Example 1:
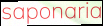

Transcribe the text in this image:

saponaria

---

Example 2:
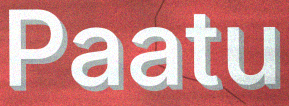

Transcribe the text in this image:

Paatu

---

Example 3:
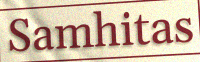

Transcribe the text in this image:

Samhitas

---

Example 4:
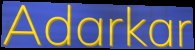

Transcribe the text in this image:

Adarkar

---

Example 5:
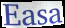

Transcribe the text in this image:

Easa